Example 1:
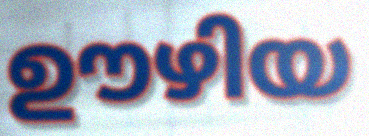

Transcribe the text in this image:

ഊഴിയ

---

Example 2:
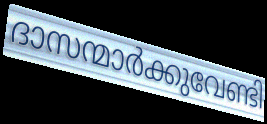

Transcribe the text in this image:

ദാസന്മാർക്കുവേണ്ടി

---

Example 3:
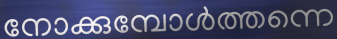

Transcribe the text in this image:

നോക്കുമ്പോൾത്തന്നെ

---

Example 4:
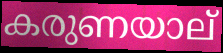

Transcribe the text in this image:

കരുണയാല്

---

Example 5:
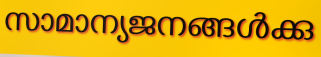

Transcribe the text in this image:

സാമാന്യജനങ്ങൾക്കു